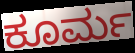
ಕೂರ್ಮ